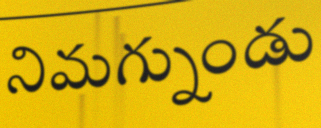
నిమగ్నుండు